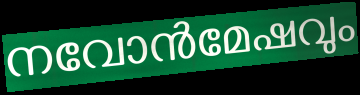
നവോൻമേഷവും